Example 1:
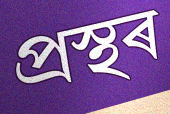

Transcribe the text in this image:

প্ৰস্থৰ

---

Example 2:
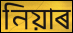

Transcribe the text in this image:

নিয়াৰ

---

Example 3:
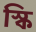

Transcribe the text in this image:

স্কি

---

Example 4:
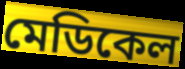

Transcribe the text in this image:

মেডিকেল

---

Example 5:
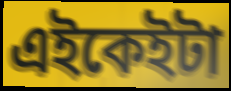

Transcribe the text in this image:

এইকেইটা